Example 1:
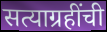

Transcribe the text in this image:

सत्याग्रहींची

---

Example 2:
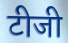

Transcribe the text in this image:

टीजी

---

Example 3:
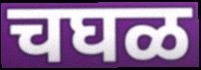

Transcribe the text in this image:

चघळ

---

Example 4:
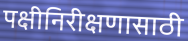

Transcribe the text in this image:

पक्षीनिरीक्षणासाठी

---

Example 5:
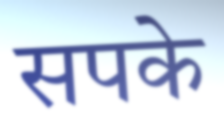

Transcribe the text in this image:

सपके